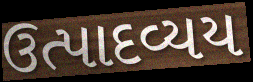
ઉત્પાદવ્યય